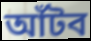
আঁটব